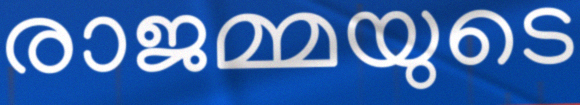
രാജമ്മയുടെ